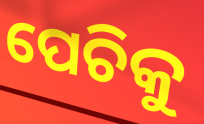
ପେଚିକୁ